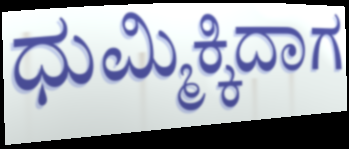
ಧುಮ್ಮಿಕ್ಕಿದಾಗ